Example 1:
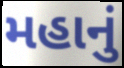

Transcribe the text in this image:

મહાનું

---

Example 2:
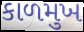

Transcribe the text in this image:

કાળમુખ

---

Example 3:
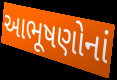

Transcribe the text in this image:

આભૂષણોનાં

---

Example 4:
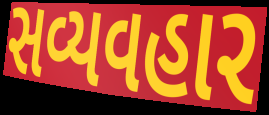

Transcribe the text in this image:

સવ્યવહાર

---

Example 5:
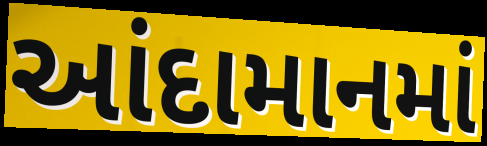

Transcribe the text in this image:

આંદામાનમાં